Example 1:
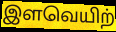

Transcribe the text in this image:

இளவெயிற்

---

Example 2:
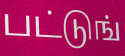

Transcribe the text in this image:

பட்டுங்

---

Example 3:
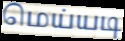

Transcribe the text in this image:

மெய்யடி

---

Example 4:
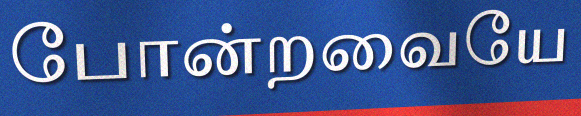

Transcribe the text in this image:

போன்றவையே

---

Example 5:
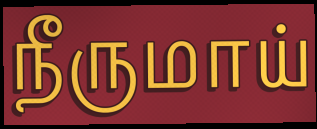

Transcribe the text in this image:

நீருமாய்